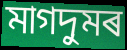
মাগদুমৰ